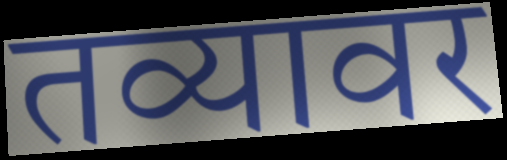
तव्यावर